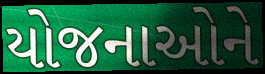
યોજનાઓને